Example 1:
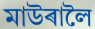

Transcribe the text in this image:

মাউৰালৈ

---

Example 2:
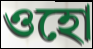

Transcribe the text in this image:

ওহো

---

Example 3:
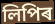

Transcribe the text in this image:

লিপিৰ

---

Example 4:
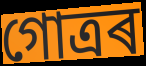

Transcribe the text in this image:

গোত্ৰৰ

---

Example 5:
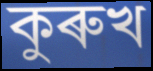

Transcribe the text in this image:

কুৰুখ